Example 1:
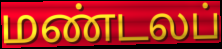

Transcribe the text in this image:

மண்டலப்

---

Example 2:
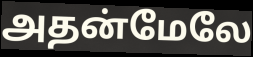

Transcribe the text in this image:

அதன்மேலே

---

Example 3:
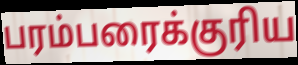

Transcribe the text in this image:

பரம்பரைக்குரிய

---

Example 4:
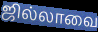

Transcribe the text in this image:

ஜில்லாவை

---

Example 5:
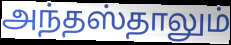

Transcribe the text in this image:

அந்தஸ்தாலும்